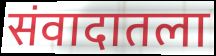
संवादातला